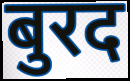
बुरद